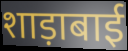
शाड़ाबाई